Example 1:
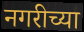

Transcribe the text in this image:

नगरीच्या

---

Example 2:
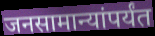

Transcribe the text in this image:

जनसामान्यांपर्यंत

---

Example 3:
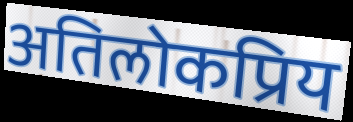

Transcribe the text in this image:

अतिलोकप्रिय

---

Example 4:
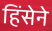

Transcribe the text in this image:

हिंसेने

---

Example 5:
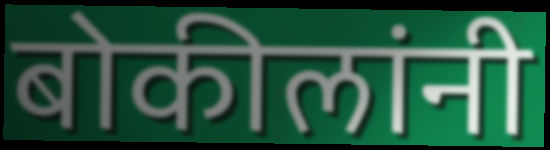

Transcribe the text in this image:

बोकीलांनी